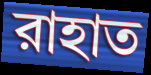
রাহাত